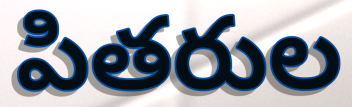
పితరుల